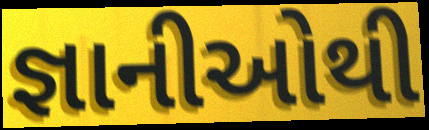
જ્ઞાનીઓથી